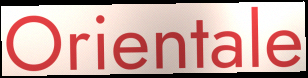
Orientale